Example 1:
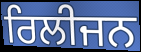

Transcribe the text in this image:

ਰਿਲੀਜਨ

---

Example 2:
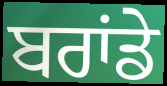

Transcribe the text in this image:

ਬਰਾਂਡੇ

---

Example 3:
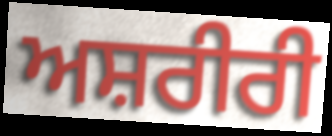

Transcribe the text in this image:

ਅਸ਼ਰੀਰੀ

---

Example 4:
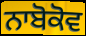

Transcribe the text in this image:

ਨਾਬੋਕੋਵ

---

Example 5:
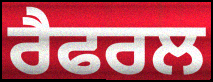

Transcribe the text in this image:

ਰੈਫਰਲ